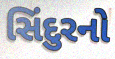
સિંદુરનો